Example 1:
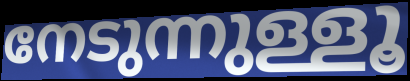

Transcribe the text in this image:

നേടുന്നുള്ളൂ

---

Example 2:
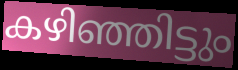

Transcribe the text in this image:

കഴിഞ്ഞിട്ടും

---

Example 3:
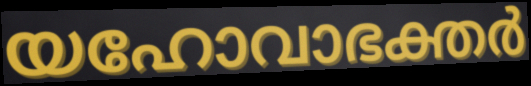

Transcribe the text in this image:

യഹോവാഭക്തർ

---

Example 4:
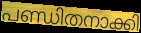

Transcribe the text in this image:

പണ്ഡിതനാക്കി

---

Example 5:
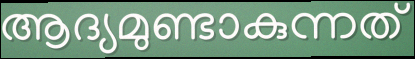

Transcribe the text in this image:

ആദ്യമുണ്ടാകുന്നത്